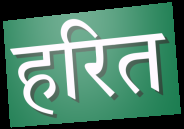
हरित